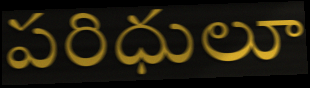
పరిధులూ